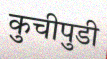
कुचीपुडी